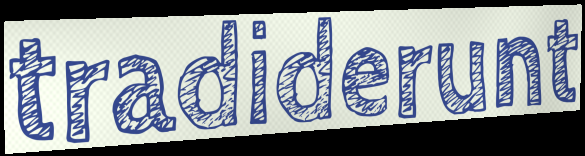
tradiderunt